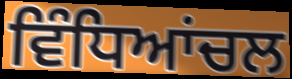
ਵਿੰਧਿਆਂਚਲ